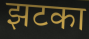
झटका